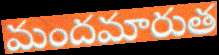
మందమారుత